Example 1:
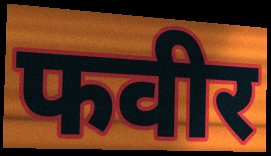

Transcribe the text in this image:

फवीर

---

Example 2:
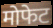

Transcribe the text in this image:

मोफेट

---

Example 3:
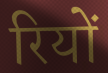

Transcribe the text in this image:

रियों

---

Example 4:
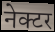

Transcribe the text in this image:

नेक्टर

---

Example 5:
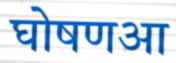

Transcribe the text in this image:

घोषणआ